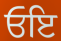
ਓਇ